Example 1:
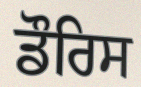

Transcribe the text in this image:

ਡੌਰਿਸ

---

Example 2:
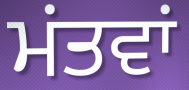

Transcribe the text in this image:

ਮਂਤਵਾਂ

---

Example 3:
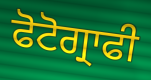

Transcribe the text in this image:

ਫੋਟੋਗ੍ਰਾਫੀ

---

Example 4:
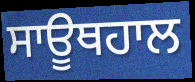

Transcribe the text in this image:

ਸਾਊਥਹਾਲ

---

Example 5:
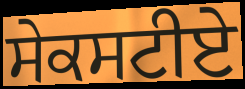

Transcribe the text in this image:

ਸੇਕਸਟੀਏ